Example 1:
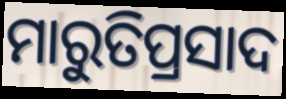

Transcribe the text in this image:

ମାରୁତିପ୍ରସାଦ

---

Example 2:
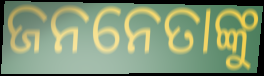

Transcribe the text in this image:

ଜନନେତାଙ୍କୁ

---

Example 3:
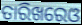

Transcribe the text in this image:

ତାରିଖରେଓ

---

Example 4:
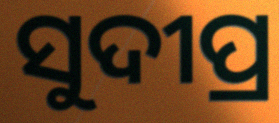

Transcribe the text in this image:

ସୁଦୀପ୍ର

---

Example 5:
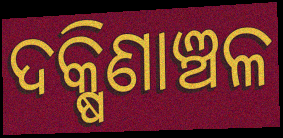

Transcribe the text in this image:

ଦକ୍ଷିଣାଞ୍ଚଳ